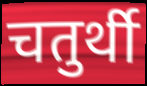
चतुर्थी